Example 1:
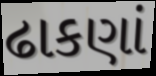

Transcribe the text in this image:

ઢાકણાં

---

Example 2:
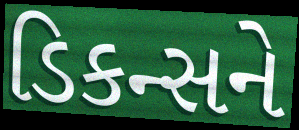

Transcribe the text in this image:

ડિકન્સને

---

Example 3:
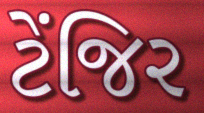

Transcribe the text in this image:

ટેંજિર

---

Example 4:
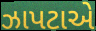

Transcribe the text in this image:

ઝાપટાએ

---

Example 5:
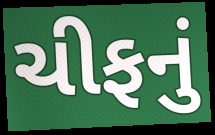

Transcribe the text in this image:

ચીફનું